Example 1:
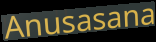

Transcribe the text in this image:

Anusasana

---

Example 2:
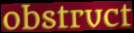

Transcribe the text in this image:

obstruct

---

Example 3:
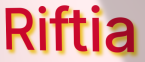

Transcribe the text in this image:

Riftia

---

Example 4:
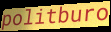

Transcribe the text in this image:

politburo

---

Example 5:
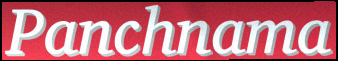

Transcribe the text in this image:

Panchnama